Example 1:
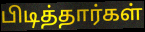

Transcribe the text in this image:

பிடித்தார்கள்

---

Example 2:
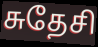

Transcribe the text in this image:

சுதேசி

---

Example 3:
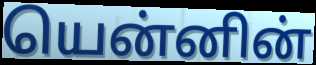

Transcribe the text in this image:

யென்னின்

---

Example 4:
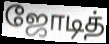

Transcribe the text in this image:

ஜோடித்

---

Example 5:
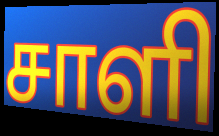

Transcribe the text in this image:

சாளி